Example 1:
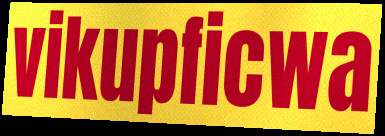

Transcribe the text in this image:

vikupficwa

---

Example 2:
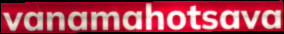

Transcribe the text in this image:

vanamahotsava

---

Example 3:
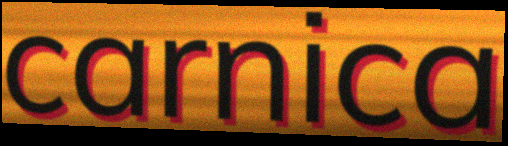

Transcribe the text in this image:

carnica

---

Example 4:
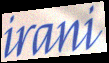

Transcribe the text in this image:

irani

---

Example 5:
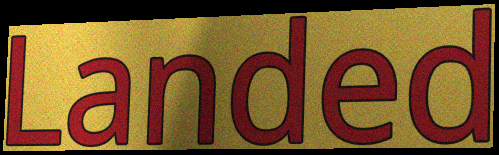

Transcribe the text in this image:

Landed